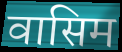
वासिम